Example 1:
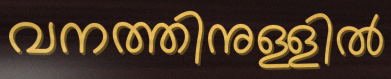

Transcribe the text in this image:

വനത്തിനുള്ളിൽ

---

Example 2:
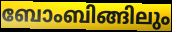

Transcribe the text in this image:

ബോംബിങ്ങിലും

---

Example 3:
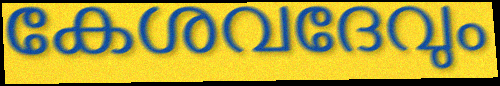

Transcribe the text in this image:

കേശവദേവും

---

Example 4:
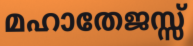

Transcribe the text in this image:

മഹാതേജസ്സ്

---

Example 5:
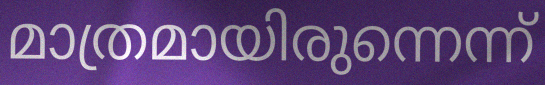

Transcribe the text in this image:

മാത്രമായിരുന്നെന്ന്